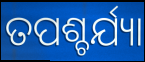
ତପଶ୍ଚର୍ଯ୍ୟା